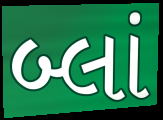
બ્લાં